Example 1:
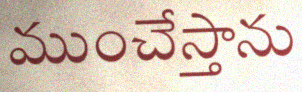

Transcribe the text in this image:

ముంచేస్తాను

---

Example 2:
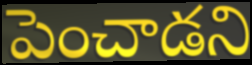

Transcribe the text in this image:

పెంచాడని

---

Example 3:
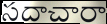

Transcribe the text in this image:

సదాచారా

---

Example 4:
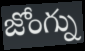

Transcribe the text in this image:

జోంగ్ను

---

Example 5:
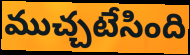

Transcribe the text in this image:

ముచ్చటేసింది